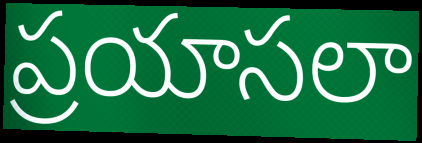
ప్రయాసలా